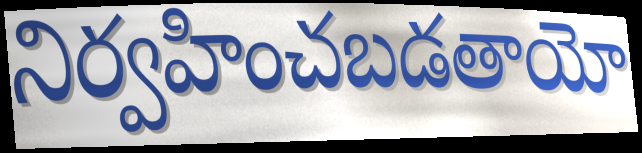
నిర్వహించబడతాయో